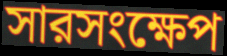
সারসংক্ষেপ